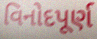
વિનોદપૂર્ણ